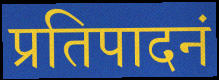
प्रतिपादनं